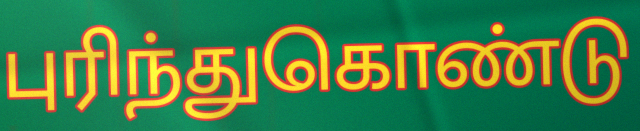
புரிந்துகொண்டு